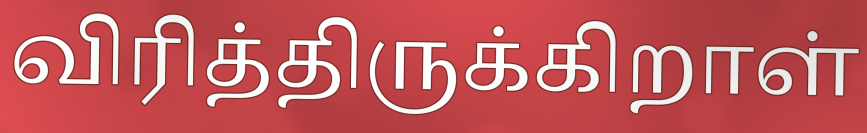
விரித்திருக்கிறாள்